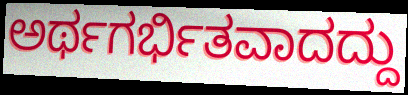
ಅರ್ಥಗರ್ಭಿತವಾದದ್ದು